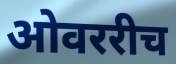
ओवररीच